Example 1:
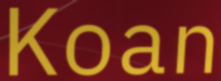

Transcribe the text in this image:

Koan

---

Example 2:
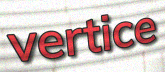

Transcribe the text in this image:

vertice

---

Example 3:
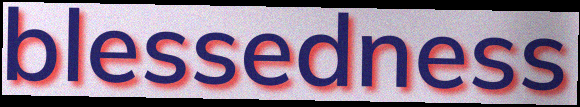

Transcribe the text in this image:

blessedness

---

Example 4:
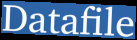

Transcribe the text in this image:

Datafile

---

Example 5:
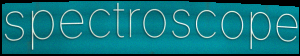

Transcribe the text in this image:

spectroscope